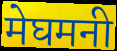
मेघमनी